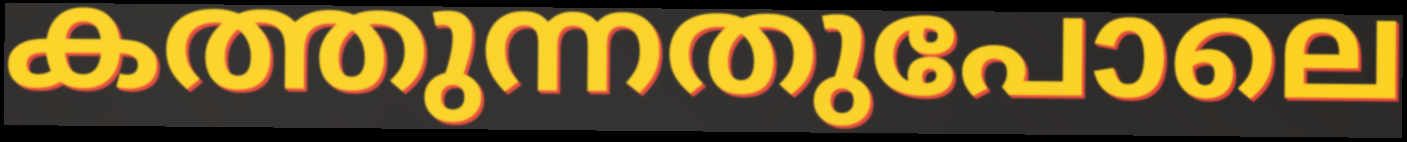
കത്തുന്നതുപോലെ